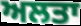
ਅਲਤਾ